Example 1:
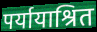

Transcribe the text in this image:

पर्यायाश्रित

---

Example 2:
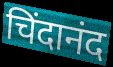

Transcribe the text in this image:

चिंदानंद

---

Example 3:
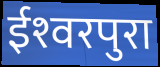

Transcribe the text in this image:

ईश्वरपुरा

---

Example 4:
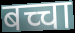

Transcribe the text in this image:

बच्‍चा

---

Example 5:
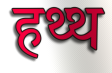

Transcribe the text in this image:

हथ्थ